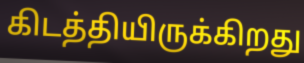
கிடத்தியிருக்கிறது